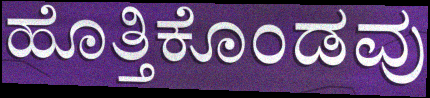
ಹೊತ್ತಿಕೊಂಡವು